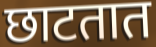
छाटतात